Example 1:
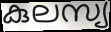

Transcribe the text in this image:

കുലസ്യ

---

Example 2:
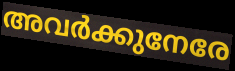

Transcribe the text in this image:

അവർക്കുനേരേ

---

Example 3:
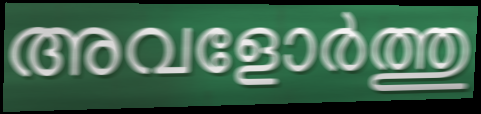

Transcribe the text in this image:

അവളോർത്തു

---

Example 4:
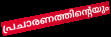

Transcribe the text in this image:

പ്രചാരണത്തിന്റെയും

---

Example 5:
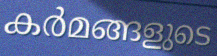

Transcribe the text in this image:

കർമങ്ങളുടെ